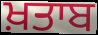
ਖ਼ਤਾਬ